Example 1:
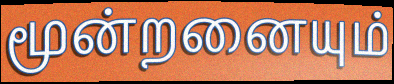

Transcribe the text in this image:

மூன்றனையும்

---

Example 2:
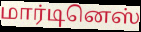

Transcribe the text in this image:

மார்டினெஸ்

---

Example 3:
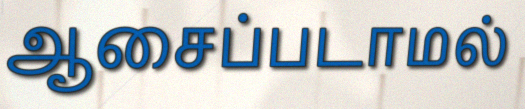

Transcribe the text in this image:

ஆசைப்படாமல்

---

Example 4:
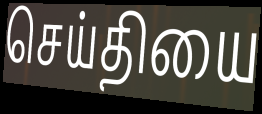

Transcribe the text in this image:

செய்தியை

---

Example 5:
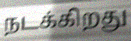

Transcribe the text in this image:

நடக்கிறது